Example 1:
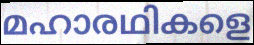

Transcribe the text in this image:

മഹാരഥികളെ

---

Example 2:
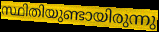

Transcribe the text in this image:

സ്ഥിതിയുണ്ടായിരുന്നു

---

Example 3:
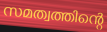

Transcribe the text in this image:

സമത്വത്തിന്റെ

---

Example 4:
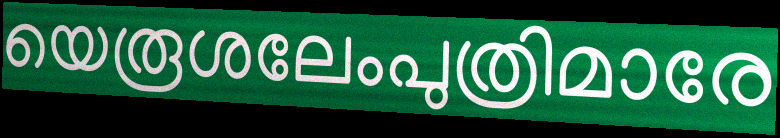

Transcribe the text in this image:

യെരൂശലേംപുത്രിമാരേ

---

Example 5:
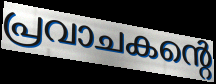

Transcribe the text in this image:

പ്രവാചകന്റെ